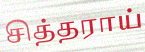
சித்தராய்